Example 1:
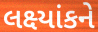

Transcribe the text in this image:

લક્ષ્યાંકને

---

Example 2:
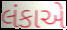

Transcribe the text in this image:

લંકાએ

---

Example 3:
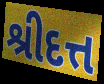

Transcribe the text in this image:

શ્રીદત્ત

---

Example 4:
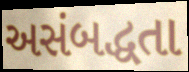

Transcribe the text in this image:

અસંબદ્ધતા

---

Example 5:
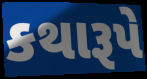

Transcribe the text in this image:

કથારૂપે